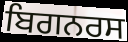
ਬਿਗਨਰਸ